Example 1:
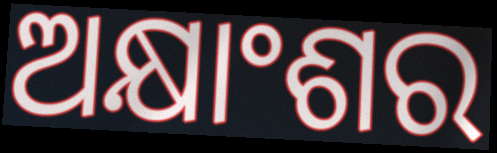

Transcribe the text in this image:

ଅକ୍ଷାଂଶର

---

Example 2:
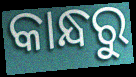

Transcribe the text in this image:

କାନ୍ଧରୁ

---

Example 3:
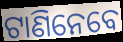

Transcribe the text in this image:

ଟାଣିନେବେ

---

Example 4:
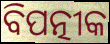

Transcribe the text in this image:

ବିପତ୍ନୀକ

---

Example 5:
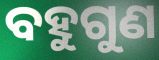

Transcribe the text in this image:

ବହୁଗୁଣ